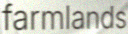
farmlands